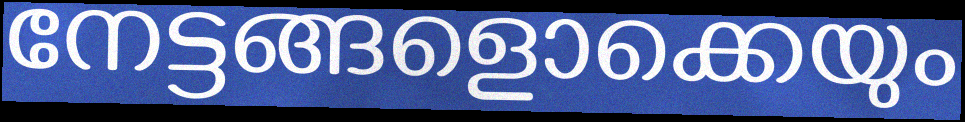
നേട്ടങ്ങളൊക്കെയും